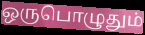
ஒருபொழுதும்